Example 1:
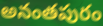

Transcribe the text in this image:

అనంతపురం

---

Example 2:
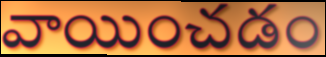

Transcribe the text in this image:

వాయించడం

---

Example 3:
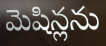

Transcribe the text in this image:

మెషిన్లను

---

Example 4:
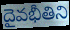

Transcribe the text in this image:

దైవభీతిని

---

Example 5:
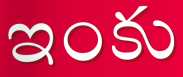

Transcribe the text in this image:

ఇంకు